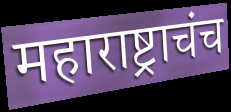
महाराष्ट्राचंच